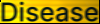
Disease